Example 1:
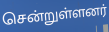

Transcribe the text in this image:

சென்றுள்ளனர்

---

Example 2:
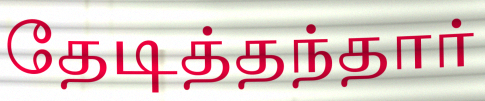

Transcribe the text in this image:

தேடித்தந்தார்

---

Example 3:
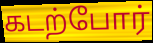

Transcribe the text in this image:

கடற்போர்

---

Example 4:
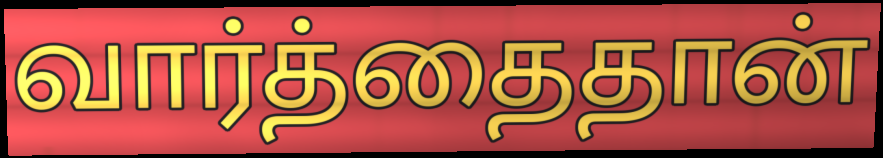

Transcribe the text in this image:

வார்த்தைதான்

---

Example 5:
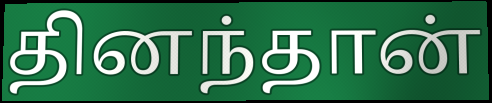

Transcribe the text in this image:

தினந்தான்